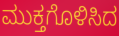
ಮುಕ್ತಗೊಳಿಸಿದ